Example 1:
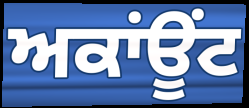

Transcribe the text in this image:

ਅਕਾਂਊਂਟ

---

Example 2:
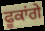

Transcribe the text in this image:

ਫੂਕਾਂਗੇ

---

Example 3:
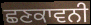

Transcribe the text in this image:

ਛਣਕਾਵਨੀ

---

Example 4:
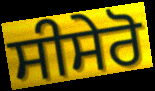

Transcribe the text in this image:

ਸੀਸੇਰੋ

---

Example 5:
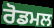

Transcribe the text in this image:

ਰੋਡਮਲ